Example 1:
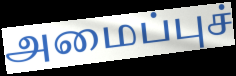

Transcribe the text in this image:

அமைப்புச்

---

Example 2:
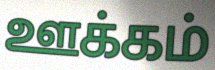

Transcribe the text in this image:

ஊக்கம்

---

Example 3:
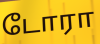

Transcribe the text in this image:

டோரா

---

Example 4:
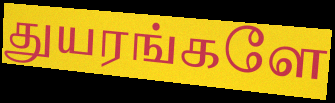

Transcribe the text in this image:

துயரங்களே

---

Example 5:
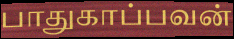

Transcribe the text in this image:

பாதுகாப்பவன்